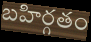
బహిర్గతం